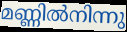
മണ്ണിൽനിന്നു